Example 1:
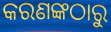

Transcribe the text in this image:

କରଣଙ୍କଠାରୁ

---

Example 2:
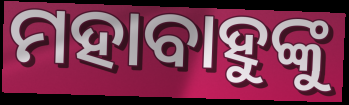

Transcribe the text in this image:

ମହାବାହୁଙ୍କୁ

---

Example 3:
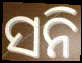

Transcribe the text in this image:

ସନି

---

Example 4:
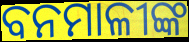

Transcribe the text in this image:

ବନମାଳୀଙ୍କ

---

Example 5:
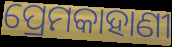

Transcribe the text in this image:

ପ୍ରେମକାହାଣୀ